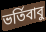
ভর্তিবাবু